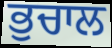
ਭੁਚਾਲ